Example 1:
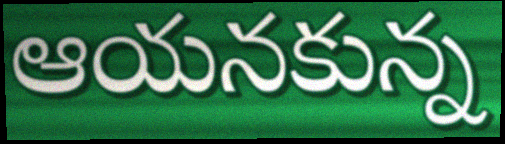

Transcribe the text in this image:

ఆయనకున్న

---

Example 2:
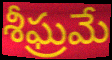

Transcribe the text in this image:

శీఘ్రమే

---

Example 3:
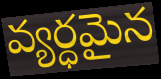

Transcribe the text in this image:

వ్యర్ధమైన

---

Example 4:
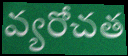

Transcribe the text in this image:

వ్యరోచత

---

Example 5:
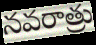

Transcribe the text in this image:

నవరాత్రు